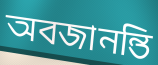
অবজানন্তি